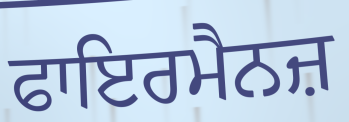
ਫਾਇਰਮੈਨਜ਼